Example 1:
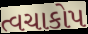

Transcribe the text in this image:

ત્વચાકોપ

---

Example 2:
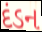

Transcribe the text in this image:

દંડન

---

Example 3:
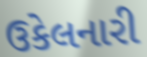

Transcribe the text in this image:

ઉકેલનારી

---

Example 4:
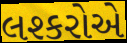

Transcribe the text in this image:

લશ્કરોએ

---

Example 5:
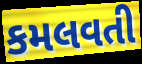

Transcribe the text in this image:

કમલવતી